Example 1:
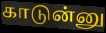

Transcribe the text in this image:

காடுன்னு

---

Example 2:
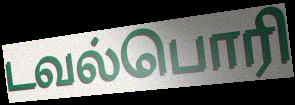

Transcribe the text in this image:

டவல்பொரி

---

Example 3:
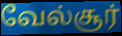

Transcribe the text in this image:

வேல்சூர்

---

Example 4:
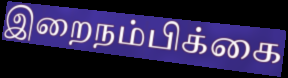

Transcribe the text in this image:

இறைநம்பிக்கை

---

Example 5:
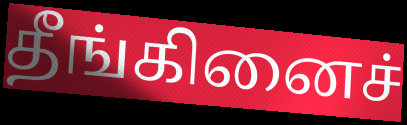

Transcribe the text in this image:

தீங்கினைச்